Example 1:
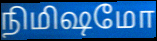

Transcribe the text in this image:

நிமிஷமோ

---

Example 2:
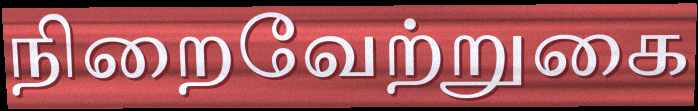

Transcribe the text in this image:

நிறைவேற்றுகை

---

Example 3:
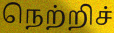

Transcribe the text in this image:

நெற்றிச்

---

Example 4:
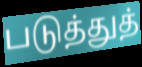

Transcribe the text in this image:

படுத்துத்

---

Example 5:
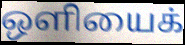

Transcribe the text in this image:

ஒளியைக்